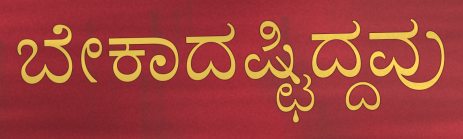
ಬೇಕಾದಷ್ಟಿದ್ದವು